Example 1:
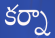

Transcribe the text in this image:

కర్నా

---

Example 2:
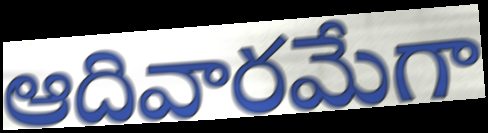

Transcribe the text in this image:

ఆదివారమేగా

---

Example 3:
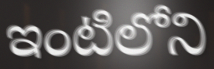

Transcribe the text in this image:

ఇంటిలోని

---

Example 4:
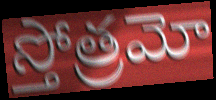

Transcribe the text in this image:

స్తోత్రమో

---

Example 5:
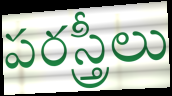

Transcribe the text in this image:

పరస్త్రీలు